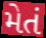
મેતં